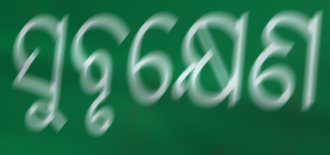
ସୁବୃକ୍ଷେଣ